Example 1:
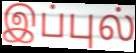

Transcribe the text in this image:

இப்புல்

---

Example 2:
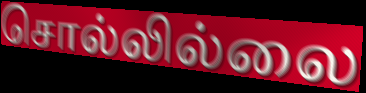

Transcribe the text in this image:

சொல்லில்லை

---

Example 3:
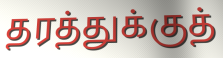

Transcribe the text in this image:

தரத்துக்குத்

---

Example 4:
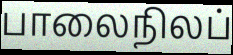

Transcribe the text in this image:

பாலைநிலப்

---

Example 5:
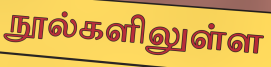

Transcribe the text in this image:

நூல்களிலுள்ள